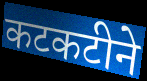
कटकटीने